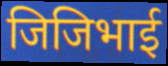
जिजिभाई